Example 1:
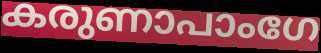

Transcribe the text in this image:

കരുണാപാംഗേ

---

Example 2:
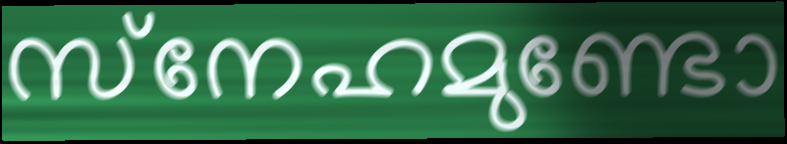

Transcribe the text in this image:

സ്‌നേഹമുണ്ടോ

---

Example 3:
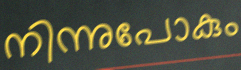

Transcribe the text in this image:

നിന്നുപോകും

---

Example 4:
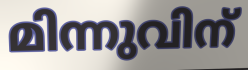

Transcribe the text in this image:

മിന്നുവിന്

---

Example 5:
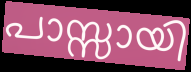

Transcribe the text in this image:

പാസ്സായി